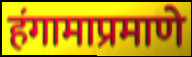
हंगामाप्रमाणे